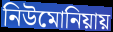
নিউমোনিয়ায়